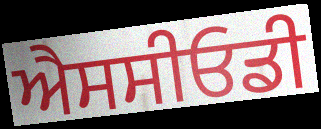
ਐਸਸੀਓਡੀ